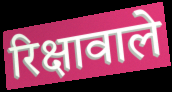
रिक्षावाले